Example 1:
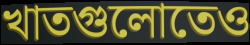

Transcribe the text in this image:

খাতগুলোতেও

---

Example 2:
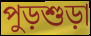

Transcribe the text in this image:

পুড়শুড়া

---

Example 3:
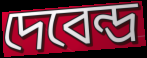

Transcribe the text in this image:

দেবেন্দ্র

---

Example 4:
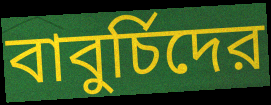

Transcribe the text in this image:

বাবুর্চিদের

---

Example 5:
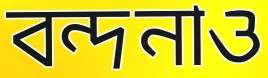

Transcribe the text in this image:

বন্দনাও